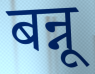
बन्नू